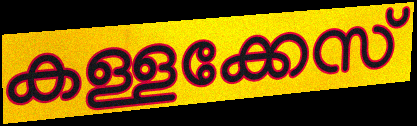
കള്ളക്കേസ്